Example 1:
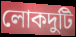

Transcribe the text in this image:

লোকদুটি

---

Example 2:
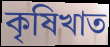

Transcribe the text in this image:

কৃষিখাত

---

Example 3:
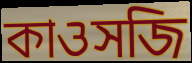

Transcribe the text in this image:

কাওসজি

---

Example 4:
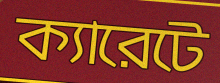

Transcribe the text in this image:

ক্যারেটে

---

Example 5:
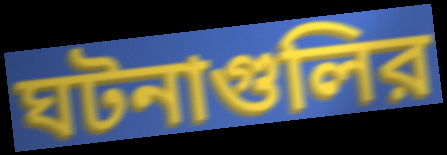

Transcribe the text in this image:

ঘটনাগুলির